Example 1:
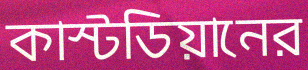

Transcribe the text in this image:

কাস্টডিয়ানের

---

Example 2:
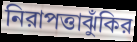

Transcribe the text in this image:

নিরাপত্তাঝুঁকির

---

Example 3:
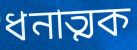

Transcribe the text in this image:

ধনাত্মক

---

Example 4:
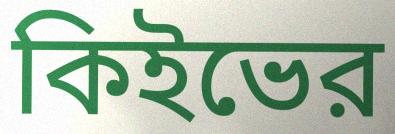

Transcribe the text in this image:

কিইভের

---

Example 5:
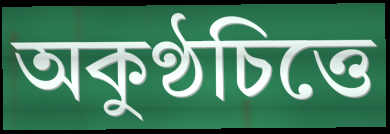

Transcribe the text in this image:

অকুণ্ঠচিত্তে